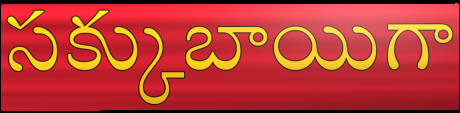
సక్కుబాయిగా